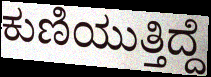
ಕುಣಿಯುತ್ತಿದ್ದೆ